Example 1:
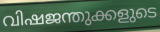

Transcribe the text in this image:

വിഷജന്തുക്കളുടെ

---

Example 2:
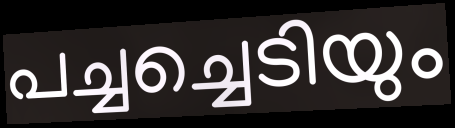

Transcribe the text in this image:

പച്ചച്ചെടിയും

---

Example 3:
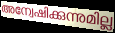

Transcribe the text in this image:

അന്വേഷിക്കുന്നുമില്ല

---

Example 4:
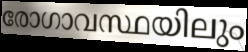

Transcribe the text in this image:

രോഗാവസ്ഥയിലും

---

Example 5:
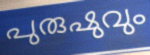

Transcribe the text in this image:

പുരുഷുവും